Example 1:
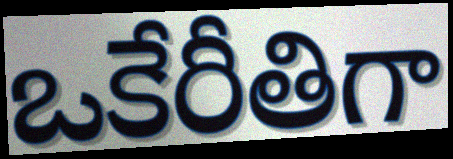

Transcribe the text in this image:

ఒకేరీతిగా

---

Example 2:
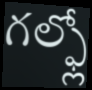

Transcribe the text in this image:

గల్ఫ్లో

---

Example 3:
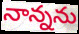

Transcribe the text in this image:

నాన్నను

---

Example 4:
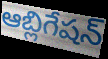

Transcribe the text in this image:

ఆబ్లిగేషన్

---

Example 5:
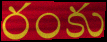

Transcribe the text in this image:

రంకు